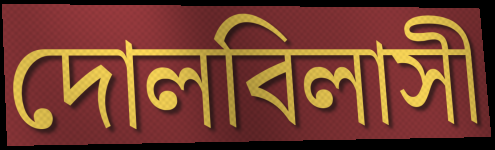
দোলবিলাসী